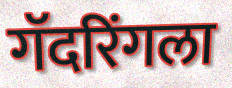
गॅदरिंगला